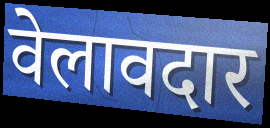
वेलावदार